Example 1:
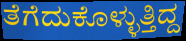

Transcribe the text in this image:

ತೆಗೆದುಕೊಳ್ಳುತ್ತಿದ್ದ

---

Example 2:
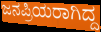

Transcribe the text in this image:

ಜನಪ್ರಿಯರಾಗಿದ್ದ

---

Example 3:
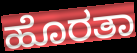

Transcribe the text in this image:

ಹೊರತಾ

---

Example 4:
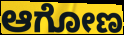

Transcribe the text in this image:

ಆಗೋಣ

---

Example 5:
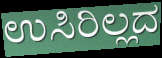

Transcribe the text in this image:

ಉಸಿರಿಲ್ಲದ